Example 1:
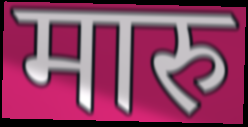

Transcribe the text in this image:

मारु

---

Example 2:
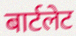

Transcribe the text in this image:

बार्टलेट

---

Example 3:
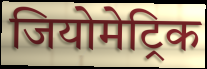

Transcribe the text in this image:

जियोमेट्रिक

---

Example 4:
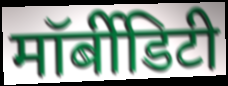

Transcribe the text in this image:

मॉर्बीडिटी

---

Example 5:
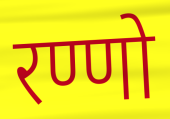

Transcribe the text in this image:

रण्णो